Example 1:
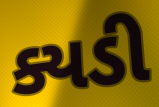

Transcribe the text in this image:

ક્યડી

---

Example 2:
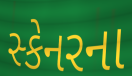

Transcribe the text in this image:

સ્કેનરના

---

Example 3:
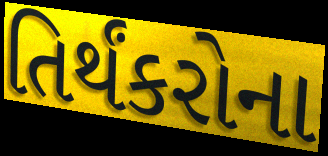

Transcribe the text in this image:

તિર્થંકરોના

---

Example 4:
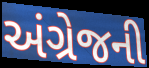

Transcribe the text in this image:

અંગ્રેજની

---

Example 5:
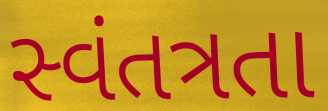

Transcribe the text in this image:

સ્વંતત્રતા